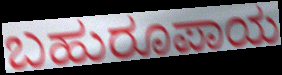
ಬಹುರೂಪಾಯ